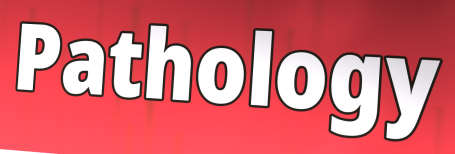
Pathology